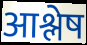
आश्लेष